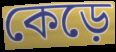
কেড়ে